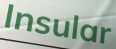
Insular